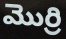
మొర్రి